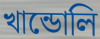
খান্ডোলি